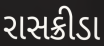
રાસક્રીડા